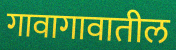
गावागावातील